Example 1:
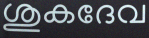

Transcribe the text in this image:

ശുകദേവ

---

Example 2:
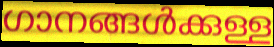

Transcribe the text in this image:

ഗാനങ്ങൾക്കുള്ള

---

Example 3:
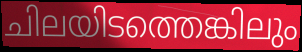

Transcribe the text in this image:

ചിലയിടത്തെങ്കിലും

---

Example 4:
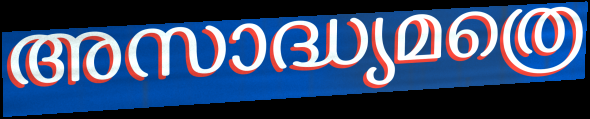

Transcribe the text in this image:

അസാദ്ധ്യമത്രെ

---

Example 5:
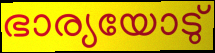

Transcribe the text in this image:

ഭാര്യയോടു്